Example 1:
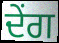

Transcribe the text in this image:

ਦੇਂਗ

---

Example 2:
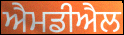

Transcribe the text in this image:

ਐਮਡੀਐਲ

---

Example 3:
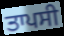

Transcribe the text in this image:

ਤਾਪਸੀ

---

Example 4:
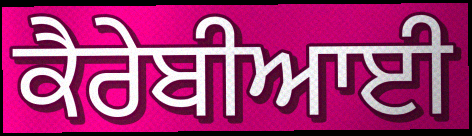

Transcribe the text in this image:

ਕੈਰੇਬੀਆਈ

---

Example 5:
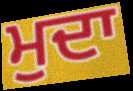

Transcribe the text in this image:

ਮੁਦਾ